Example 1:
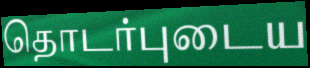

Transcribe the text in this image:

தொடர்புடைய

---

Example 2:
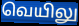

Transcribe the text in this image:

வெயிலு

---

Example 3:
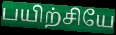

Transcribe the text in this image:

பயிற்சியே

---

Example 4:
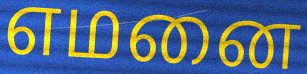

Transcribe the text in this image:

எமனை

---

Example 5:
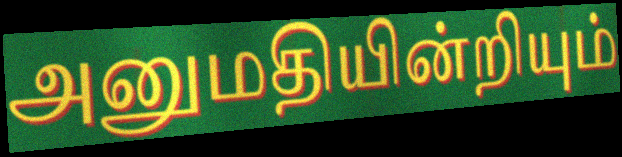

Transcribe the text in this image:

அனுமதியின்றியும்